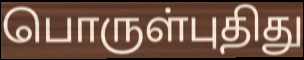
பொருள்புதிது